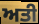
ਅਤੀ